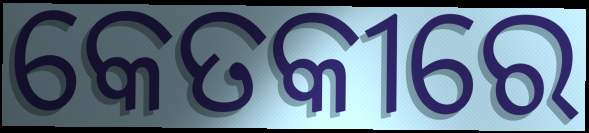
କେତକୀରେ